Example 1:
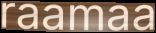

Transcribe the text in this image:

raamaa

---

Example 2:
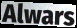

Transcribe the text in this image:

Alwars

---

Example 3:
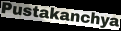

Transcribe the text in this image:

Pustakanchya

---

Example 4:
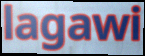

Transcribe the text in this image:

lagawi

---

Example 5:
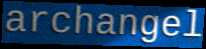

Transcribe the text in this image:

archangel